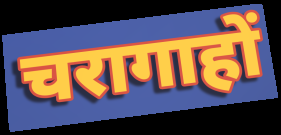
चरागाहों